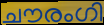
ചൗരംഗി